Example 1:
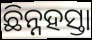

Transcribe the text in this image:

ଛିନ୍ନହସ୍ତା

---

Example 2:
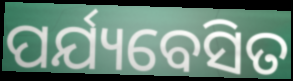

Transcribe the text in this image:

ପର୍ଯ୍ୟବେସିତ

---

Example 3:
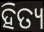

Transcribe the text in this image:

ହିତ୍ୟ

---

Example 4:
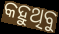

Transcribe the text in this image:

କହୁଥିବୁ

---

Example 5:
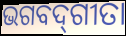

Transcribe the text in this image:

ଭଗବଦ୍‌ଗୀତା